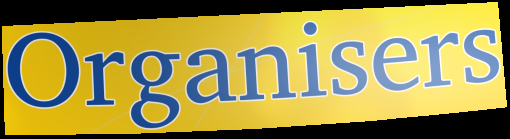
Organisers